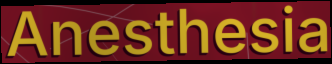
Anesthesia